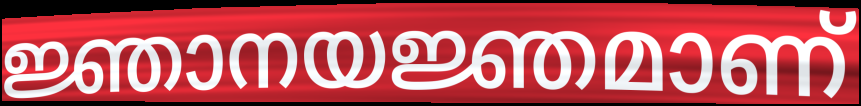
ജ്ഞാനയജ്ഞമാണ്